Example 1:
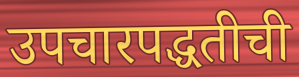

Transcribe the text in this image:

उपचारपद्धतीची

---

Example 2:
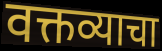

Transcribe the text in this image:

वक्तव्याचा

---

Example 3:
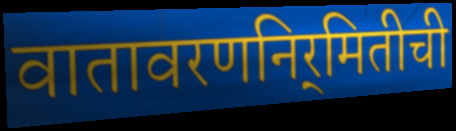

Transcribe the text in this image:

वातावरणनिर्मितीची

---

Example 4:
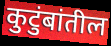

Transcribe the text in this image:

कुटुंबांतील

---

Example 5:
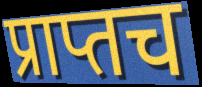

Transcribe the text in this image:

प्राप्तच